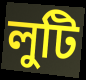
লুটি